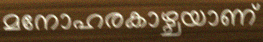
മനോഹരകാഴ്ചയാണ്